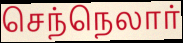
செந்நெலார்